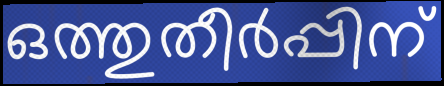
ഒത്തുതീർപ്പിന്